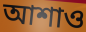
আশাও